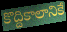
కొద్దికాలానికే